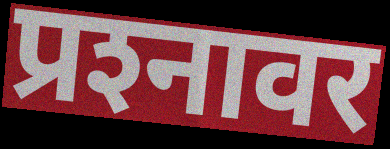
प्रश्‍नावर